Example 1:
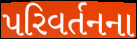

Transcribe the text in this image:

પરિવર્તનના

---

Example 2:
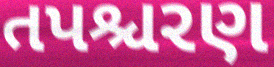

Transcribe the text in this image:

તપશ્ચરણ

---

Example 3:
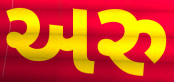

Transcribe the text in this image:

અરુ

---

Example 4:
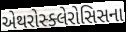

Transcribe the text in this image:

એથરોસ્ક્લેરોસિસના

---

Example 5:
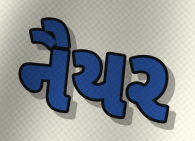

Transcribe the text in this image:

નૈયર